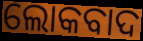
ଲୋକବାଦ